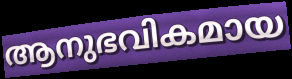
ആനുഭവികമായ